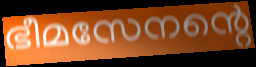
ഭീമസേനന്റെ